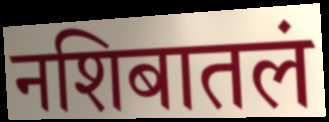
नशिबातलं